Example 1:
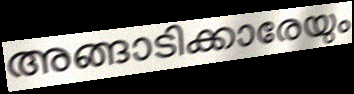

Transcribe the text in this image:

അങ്ങാടിക്കാരേയും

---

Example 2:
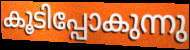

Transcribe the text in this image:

കൂടിപ്പോകുന്നു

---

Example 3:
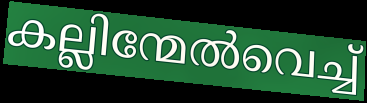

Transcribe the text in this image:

കല്ലിന്മേൽവെച്ച്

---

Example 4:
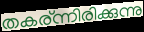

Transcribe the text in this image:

തകര്ന്നിരിക്കുന്നു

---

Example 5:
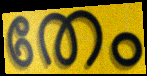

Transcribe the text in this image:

തേം